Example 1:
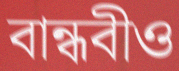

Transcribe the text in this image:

বান্ধবীও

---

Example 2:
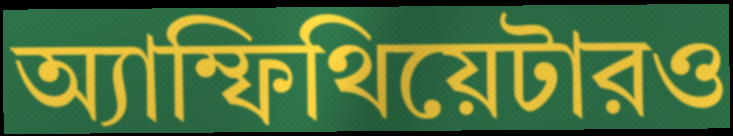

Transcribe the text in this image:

অ্যাম্ফিথিয়েটারও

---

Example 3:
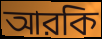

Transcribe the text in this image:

আরকি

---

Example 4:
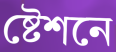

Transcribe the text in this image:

ষ্টেশনে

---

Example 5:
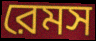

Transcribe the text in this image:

রেমস